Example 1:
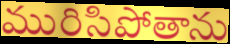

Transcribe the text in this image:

మురిసిపోతాను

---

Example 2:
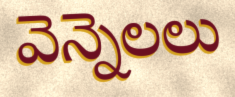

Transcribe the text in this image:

వెన్నెలలు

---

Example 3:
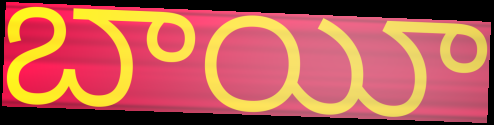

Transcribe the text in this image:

బాయీ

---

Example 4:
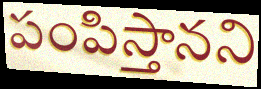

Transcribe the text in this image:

పంపిస్తానని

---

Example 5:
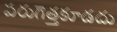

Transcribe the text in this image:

పరుగెత్తకూడదు